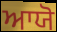
ਆਯੋ